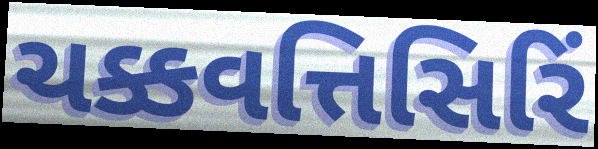
ચક્કવત્તિસિરિં